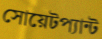
সোয়েটপ্যান্ট